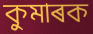
কুমাৰক